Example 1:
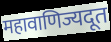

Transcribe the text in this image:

महावाणिज्यदूत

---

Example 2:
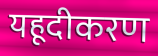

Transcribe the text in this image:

यहूदीकरण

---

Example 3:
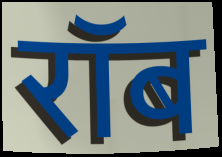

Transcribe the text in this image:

रॉब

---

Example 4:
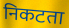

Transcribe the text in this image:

निकटता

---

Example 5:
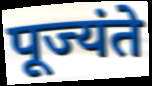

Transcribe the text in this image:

पूज्यंते